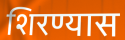
शिरण्यास